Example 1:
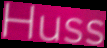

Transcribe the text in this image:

Huss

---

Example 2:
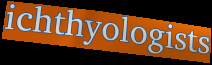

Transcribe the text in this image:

ichthyologists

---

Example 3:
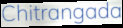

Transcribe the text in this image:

Chitrangada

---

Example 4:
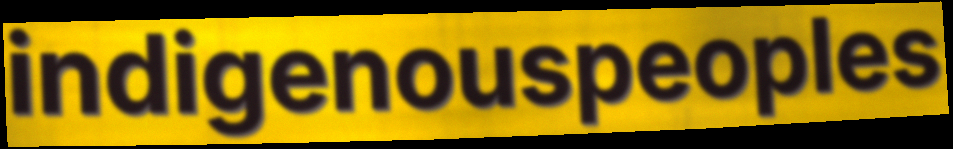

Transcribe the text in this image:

indigenouspeoples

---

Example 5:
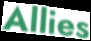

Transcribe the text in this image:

Allies